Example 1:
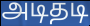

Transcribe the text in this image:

அடிதடி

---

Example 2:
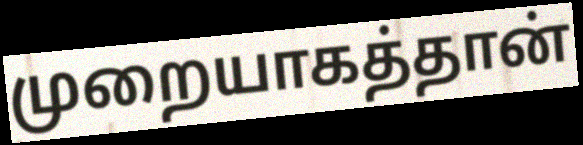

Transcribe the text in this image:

முறையாகத்தான்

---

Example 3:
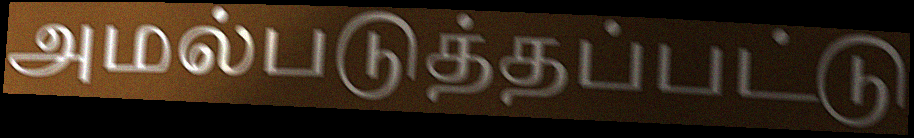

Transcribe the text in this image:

அமல்படுத்தப்பட்டு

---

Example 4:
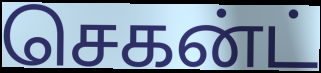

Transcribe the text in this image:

செகன்ட்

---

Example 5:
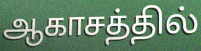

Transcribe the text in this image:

ஆகாசத்தில்